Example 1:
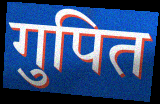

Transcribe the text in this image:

गुपित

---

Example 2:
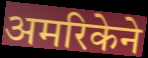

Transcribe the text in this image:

अमरिकेने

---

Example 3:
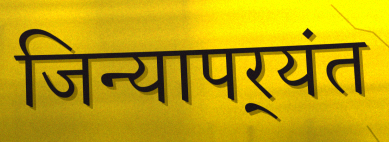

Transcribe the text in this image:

जिन्यापर्यंत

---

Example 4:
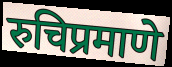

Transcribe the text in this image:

रुचिप्रमाणे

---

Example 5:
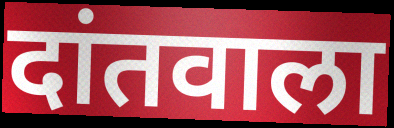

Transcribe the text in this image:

दांतवाला